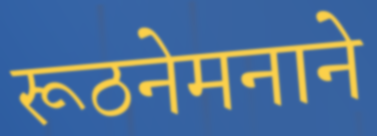
रूठनेमनाने